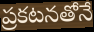
ప్రకటనతోనే